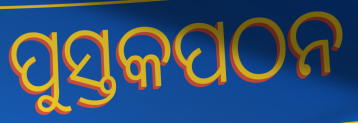
ପୁସ୍ତକପଠନ